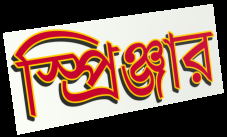
স্প্রিঞ্জার